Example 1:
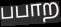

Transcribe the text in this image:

பபாற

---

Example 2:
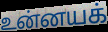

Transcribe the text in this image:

உன்னயக்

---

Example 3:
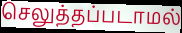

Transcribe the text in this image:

செலுத்தப்படாமல்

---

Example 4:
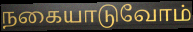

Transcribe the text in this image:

நகையாடுவோம்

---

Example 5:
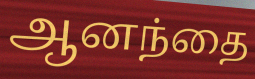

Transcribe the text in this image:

ஆனந்தை